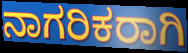
ನಾಗರಿಕರಾಗಿ